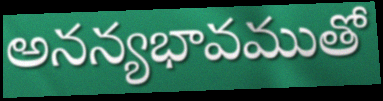
అనన్యభావముతో